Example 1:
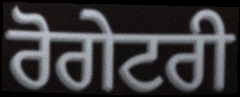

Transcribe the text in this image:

ਰੋਗੇਟਰੀ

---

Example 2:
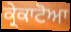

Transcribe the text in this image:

ਕ੍ਰੇਕਾਟੋਆ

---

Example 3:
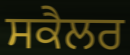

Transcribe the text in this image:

ਸਕੈਲਰ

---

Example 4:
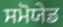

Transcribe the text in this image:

ਸਮੋਯੇਡ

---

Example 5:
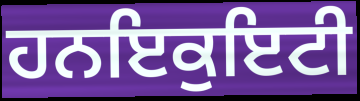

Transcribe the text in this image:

ਹਨਇਕੁਇਟੀ